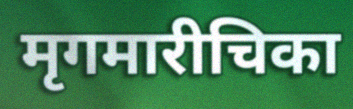
मृगमारीचिका